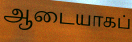
ஆடையாகப்